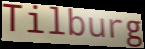
Tilburg